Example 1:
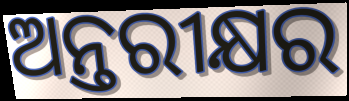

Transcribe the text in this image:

ଅନ୍ତରୀକ୍ଷର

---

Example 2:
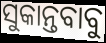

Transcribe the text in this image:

ସୁକାନ୍ତବାବୁ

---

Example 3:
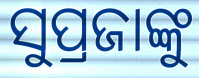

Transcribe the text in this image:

ସୁପ୍ରଜାଙ୍କୁ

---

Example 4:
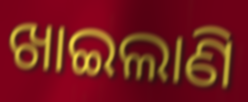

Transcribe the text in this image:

ଖାଇଲାଣି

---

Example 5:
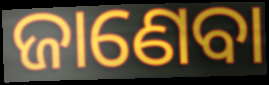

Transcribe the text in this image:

ଜାଣେବା